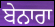
ਬੇਨਾਰਾ